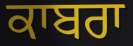
ਕਾਬਰਾ